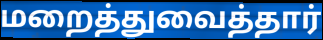
மறைத்துவைத்தார்